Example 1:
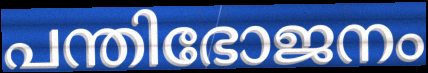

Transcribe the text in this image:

പന്തിഭോജനം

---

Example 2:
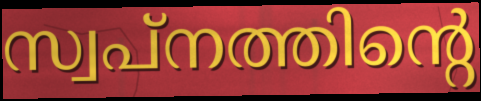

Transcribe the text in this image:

സ്വപ്നത്തിന്റെ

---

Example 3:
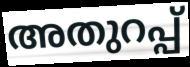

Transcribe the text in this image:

അതുറപ്പ്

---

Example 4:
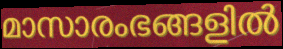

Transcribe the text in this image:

മാസാരംഭങ്ങളിൽ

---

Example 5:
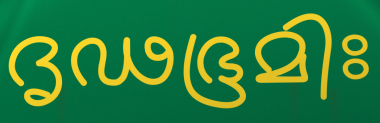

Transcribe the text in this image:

ദൃഢഭൂമിഃ